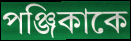
পঞ্জিকাকে